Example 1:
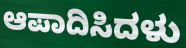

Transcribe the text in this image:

ಆಪಾದಿಸಿದಳು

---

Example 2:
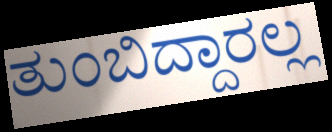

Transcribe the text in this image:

ತುಂಬಿದ್ದಾರಲ್ಲ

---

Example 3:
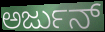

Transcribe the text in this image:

ಅರ್ಜುನ್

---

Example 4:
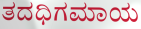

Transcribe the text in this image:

ತದಧಿಗಮಾಯ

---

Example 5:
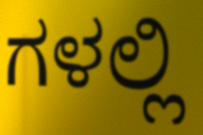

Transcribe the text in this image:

ಗಳಲ್ಲಿ